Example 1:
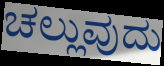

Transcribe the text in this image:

ಚಲ್ಲುವುದು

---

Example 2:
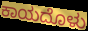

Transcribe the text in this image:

ಕಾಯದೊಳು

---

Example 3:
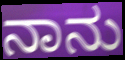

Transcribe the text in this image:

ನಾನು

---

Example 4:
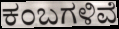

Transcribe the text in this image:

ಕಂಬಗಳಿವೆ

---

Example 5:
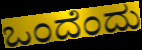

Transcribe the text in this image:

ಒಂದೆಂದು